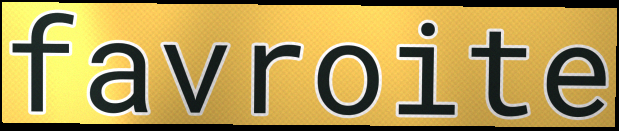
favroite